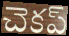
చెకప్